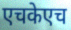
एचकेएच